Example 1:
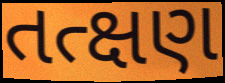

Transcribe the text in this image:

તત્ક્ષણ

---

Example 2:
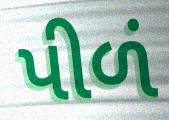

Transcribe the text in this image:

પીળં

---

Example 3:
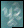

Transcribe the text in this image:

પૂરે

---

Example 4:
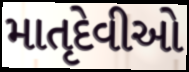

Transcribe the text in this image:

માતૃદેવીઓ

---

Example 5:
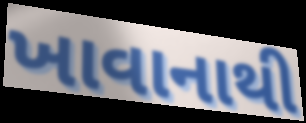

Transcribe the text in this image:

ખાવાનાથી